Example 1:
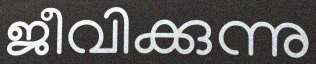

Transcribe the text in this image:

ജീവിക്കുന്നു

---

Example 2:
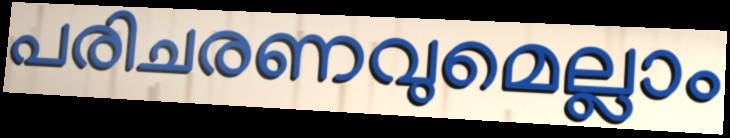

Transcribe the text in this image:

പരിചരണവുമെല്ലാം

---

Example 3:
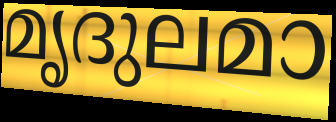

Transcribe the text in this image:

മൃദുലമാ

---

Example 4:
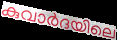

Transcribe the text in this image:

കുവാർദയിലെ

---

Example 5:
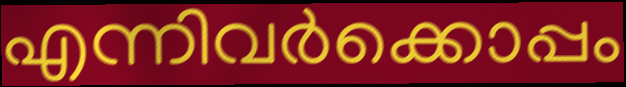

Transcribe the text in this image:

എന്നിവർക്കൊപ്പം